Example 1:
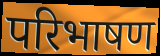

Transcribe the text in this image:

परिभाषण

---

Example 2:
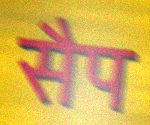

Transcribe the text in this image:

सैप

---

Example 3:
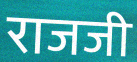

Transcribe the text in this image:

राजजी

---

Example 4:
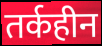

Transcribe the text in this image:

तर्कहीन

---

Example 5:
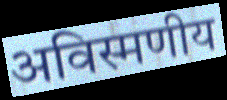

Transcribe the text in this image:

अविस्मणीय